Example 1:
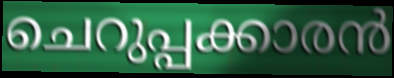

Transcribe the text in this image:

ചെറുപ്പക്കാരൻ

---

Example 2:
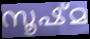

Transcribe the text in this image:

സൂഷ്മ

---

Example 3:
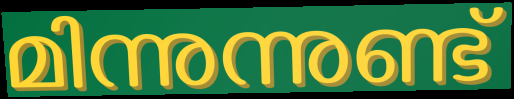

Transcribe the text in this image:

മിന്നുന്നുണ്ട്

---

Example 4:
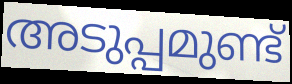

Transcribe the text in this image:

അടുപ്പമുണ്ട്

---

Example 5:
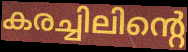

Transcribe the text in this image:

കരച്ചിലിന്റെ